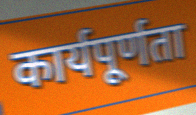
कार्यपूर्णता